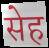
सेह